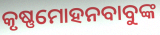
କୃଷ୍ଣମୋହନବାବୁଙ୍କ